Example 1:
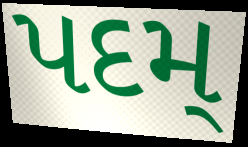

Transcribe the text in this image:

પદમ્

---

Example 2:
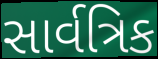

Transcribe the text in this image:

સાર્વત્રિક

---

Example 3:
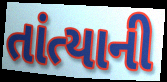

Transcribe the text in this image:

તાંત્યાની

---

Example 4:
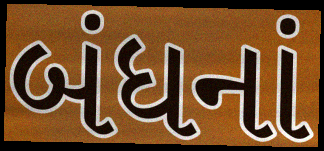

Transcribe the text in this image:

બંધનાં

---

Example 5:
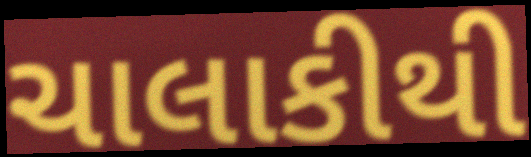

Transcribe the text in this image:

ચાલાકીથી